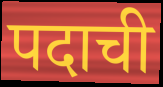
पदाची